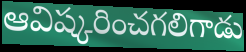
ఆవిష్కరించగలిగాడు